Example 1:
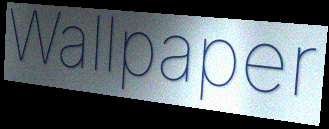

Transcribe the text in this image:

Wallpaper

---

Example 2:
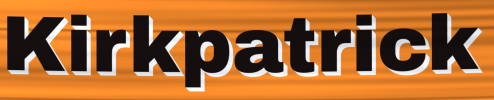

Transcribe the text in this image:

Kirkpatrick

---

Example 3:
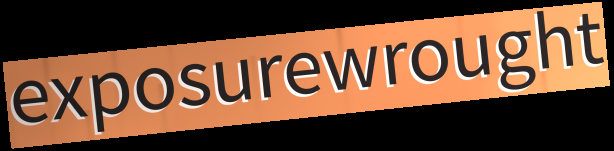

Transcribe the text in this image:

exposurewrought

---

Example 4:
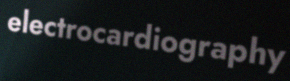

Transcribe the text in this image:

electrocardiography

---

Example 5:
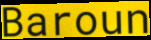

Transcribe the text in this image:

Baroun